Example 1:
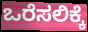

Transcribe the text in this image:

ಒರೆಸಲಿಕ್ಕೆ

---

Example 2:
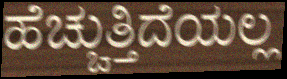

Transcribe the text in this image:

ಹೆಚ್ಚುತ್ತಿದೆಯಲ್ಲ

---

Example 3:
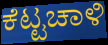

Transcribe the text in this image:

ಕೆಟ್ಟಚಾಳಿ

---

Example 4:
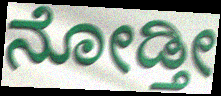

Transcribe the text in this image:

ನೋಡ್ತೀ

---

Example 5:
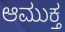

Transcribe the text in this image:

ಆಮುಕ್ತ